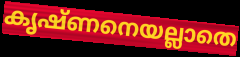
കൃഷ്ണനെയല്ലാതെ